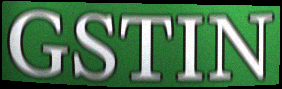
GSTIN